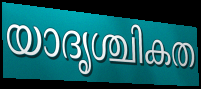
യാദൃശ്ചികത